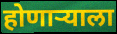
होणाऱ्याला